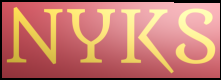
NYKS